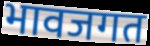
भावजगत